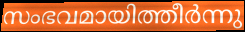
സംഭവമായിത്തീർന്നു